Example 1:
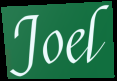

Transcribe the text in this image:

Joel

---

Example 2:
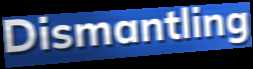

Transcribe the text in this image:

Dismantling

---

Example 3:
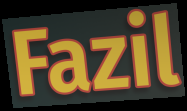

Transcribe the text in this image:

Fazil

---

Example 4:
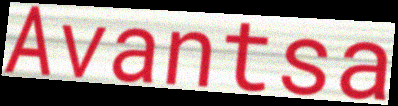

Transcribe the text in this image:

Avantsa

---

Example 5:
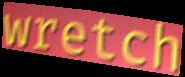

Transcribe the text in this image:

wretch